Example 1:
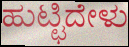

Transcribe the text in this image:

ಹುಟ್ಟಿದೇಳು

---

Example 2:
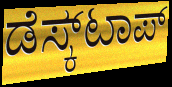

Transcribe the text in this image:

ಡೆಸ್ಕ್‌ಟಾಪ್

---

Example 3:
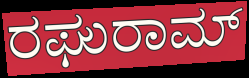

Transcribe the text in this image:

ರಘುರಾಮ್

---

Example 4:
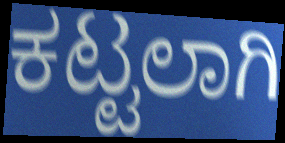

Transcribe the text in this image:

ಕಟ್ಟಲಾಗಿ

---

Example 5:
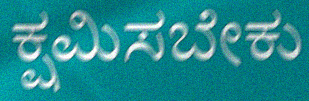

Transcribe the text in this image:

ಕ್ಷಮಿಸಬೇಕು